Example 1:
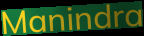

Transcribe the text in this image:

Manindra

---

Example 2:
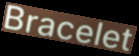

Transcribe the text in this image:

Bracelet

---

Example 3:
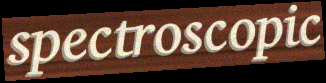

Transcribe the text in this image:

spectroscopic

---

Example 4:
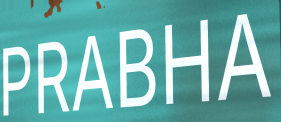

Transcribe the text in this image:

PRABHA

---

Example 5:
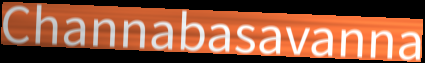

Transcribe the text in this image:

Channabasavanna